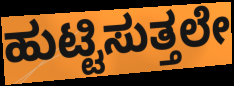
ಹುಟ್ಟಿಸುತ್ತಲೇ